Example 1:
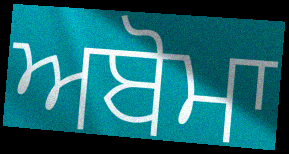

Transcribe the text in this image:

ਅਬੋਮਾ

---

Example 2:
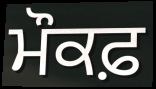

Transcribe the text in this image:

ਮੌਕਫ਼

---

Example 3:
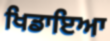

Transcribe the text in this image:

ਖਿਡਾਇਆ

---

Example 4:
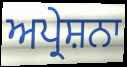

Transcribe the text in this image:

ਅਪ੍ਰੇਸ਼ਨਾ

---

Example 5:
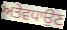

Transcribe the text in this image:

ਅਤੇਵਧਾਉਣ